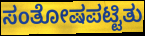
ಸಂತೋಷಪಟ್ಟಿತು